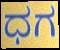
ಧಗ